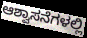
ಆಶ್ವಾಸನೆಗಳಲ್ಲಿ